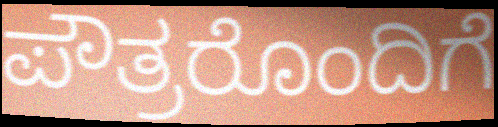
ಪೌತ್ರರೊಂದಿಗೆ